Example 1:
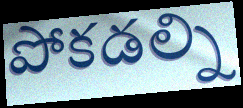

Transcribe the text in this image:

పోకడల్ని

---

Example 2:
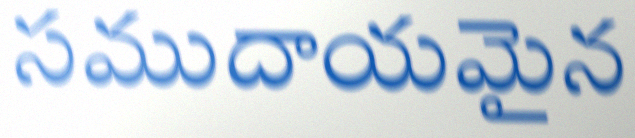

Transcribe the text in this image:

సముదాయమైన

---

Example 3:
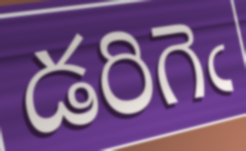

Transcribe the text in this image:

డరిగెఁ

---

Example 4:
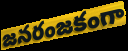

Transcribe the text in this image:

జనరంజకంగా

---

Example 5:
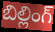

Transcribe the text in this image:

బిల్లింగ్